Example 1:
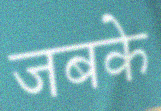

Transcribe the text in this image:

जबके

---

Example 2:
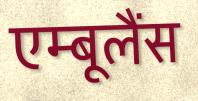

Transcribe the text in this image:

एम्बूलैंस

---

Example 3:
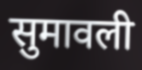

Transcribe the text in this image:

सुमावली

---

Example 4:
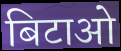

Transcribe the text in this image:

बिटाओ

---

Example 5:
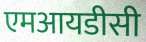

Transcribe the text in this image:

एमआयडीसी